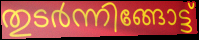
തുടർന്നിങ്ങോട്ട്